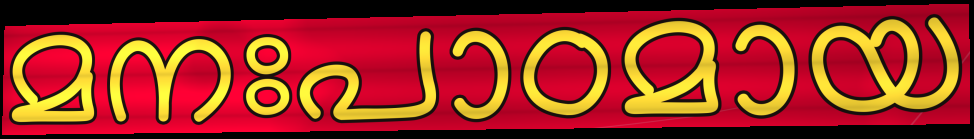
മനഃപാഠമായ